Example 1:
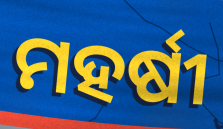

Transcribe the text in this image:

ମହର୍ଷୀ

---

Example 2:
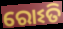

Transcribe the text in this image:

ରୋଽତି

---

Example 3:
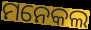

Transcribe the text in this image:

ମନେକଲ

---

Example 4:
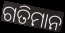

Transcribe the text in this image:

ଗତିମାନ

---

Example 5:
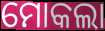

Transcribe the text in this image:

ମୋକଲା